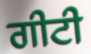
ਗੀਟੀ